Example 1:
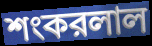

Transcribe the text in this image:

শংকরলাল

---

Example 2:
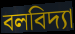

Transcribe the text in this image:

বলবিদ্যা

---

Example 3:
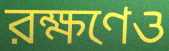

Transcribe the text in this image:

রক্ষণেও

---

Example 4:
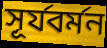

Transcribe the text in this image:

সূর্যবর্মন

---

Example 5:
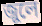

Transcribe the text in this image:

জুলে